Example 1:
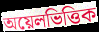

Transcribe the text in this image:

অয়েলভিত্তিক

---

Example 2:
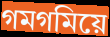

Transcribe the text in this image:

গমগমিয়ে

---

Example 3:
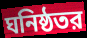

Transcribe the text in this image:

ঘনিষ্ঠতর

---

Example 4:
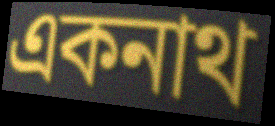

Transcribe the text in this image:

একনাথ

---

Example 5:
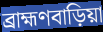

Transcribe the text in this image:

ব্রাহ্মণবাড়িয়া